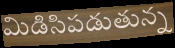
మిడిసిపడుతున్న